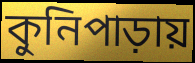
কুনিপাড়ায়